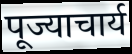
पूज्याचार्य